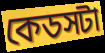
কেডসটা